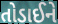
તોડાઈને